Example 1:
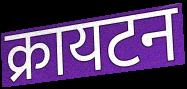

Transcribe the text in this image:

क्रायटन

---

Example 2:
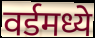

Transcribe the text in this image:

वर्डमध्ये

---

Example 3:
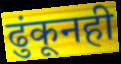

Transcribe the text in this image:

ढुंकूनही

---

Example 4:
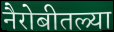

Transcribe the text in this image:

नैरोबीतल्या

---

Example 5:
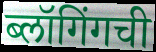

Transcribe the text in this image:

ब्लॉगिंगची